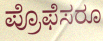
ಪ್ರೊಫೆಸರೂ